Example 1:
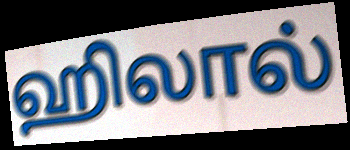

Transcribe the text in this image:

ஹிலால்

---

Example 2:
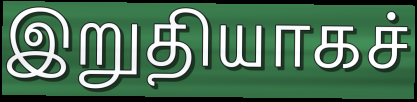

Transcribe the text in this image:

இறுதியாகச்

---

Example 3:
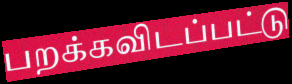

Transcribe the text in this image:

பறக்கவிடப்பட்டு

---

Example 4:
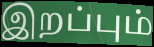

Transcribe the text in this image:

இறப்பும்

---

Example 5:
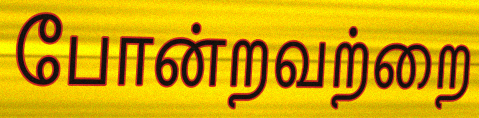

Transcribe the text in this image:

போன்றவற்றை